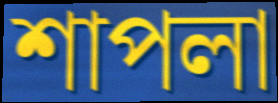
শাপলা